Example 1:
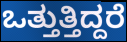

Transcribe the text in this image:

ಒತ್ತುತ್ತಿದ್ದರೆ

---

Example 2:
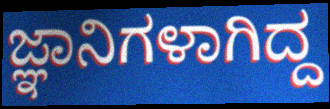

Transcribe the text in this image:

ಜ್ಞಾನಿಗಳಾಗಿದ್ದ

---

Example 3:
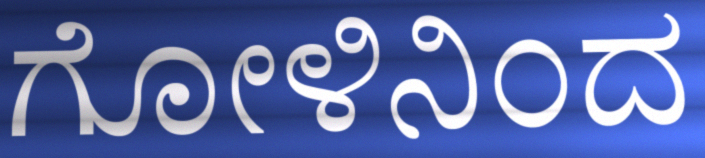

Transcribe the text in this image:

ಗೋಳಿನಿಂದ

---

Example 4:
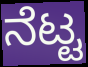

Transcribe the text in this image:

ನೆಟ್ಟ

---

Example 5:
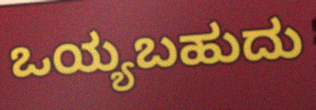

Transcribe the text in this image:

ಒಯ್ಯಬಹುದು